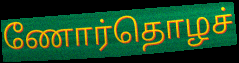
ணோர்தொழச்